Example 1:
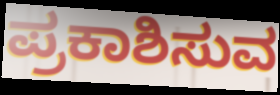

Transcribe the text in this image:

ಪ್ರಕಾಶಿಸುವ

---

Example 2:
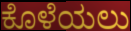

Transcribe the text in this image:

ಕೊಳೆಯಲು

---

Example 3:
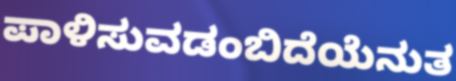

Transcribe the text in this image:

ಪಾಳಿಸುವಡಂಬಿದೆಯೆನುತ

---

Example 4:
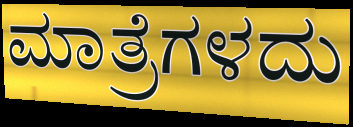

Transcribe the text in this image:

ಮಾತ್ರೆಗಳದು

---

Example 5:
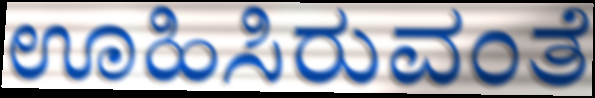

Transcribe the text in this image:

ಊಹಿಸಿರುವಂತೆ